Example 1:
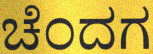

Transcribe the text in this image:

ಚೆಂದಗ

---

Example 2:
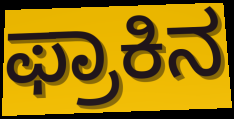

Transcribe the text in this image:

ಫ್ರಾಕಿನ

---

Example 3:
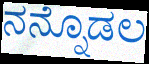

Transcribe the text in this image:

ನನ್ನೊಡಲ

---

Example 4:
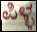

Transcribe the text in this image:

ಪಿಳ್ಳ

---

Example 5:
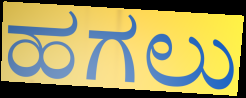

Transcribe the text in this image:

ಹಗಲು